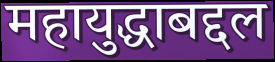
महायुद्धाबद्दल